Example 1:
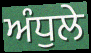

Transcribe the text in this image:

ਅੰਧੁਲੇ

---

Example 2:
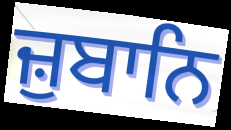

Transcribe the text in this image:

ਜ਼ੁਬਾਨਿ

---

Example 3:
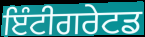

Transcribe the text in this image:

ਇੰਟੀਗਰੇਟਡ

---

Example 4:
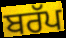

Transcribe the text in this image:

ਬਰੱਪ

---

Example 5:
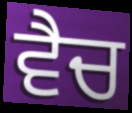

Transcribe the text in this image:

ਵੈਚ